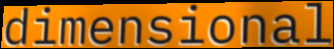
dimensional